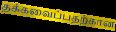
தக்கவைப்பதற்கான